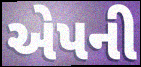
એપની